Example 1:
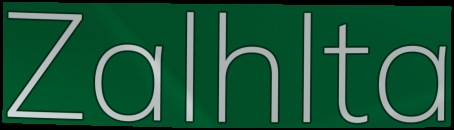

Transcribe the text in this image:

Zalhlta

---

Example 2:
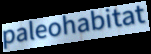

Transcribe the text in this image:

paleohabitat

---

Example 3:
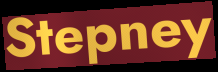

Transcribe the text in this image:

Stepney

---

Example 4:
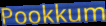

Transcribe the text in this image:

Pookkum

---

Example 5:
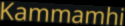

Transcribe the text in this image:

Kammamhi